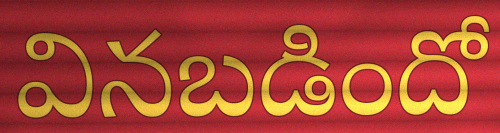
వినబడిందో